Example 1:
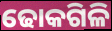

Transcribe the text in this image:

ଢୋକଗିଳି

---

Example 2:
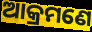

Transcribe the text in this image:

ଆକ୍ରମଣେ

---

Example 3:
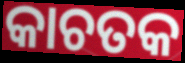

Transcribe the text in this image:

କାଚତକ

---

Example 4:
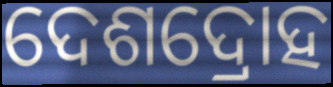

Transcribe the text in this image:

ଦେଶଦ୍ରୋହ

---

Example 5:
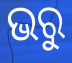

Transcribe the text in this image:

ଭରୁ